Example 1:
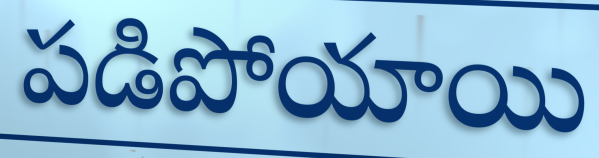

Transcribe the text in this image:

పడిపోయాయి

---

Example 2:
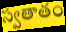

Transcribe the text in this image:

స్వతాతం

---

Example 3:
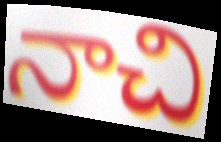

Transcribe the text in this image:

నాచి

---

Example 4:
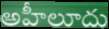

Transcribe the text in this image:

అహీలూదు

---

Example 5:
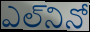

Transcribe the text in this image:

ఎల్‌నినో